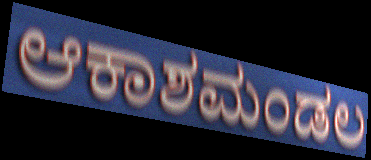
ಆಕಾಶಮಂಡಲ